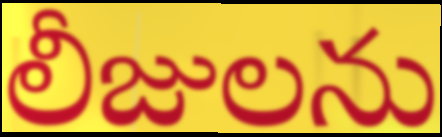
లీజులను